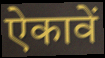
ऐकावें